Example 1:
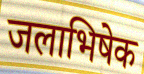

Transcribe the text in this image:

जलाभिषेक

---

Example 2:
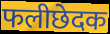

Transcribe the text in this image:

फलीछेदक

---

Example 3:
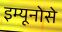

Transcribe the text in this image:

इम्यूनोसे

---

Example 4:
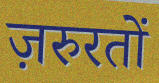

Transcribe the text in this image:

ज़रुरतों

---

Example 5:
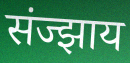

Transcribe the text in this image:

संज्झाय